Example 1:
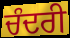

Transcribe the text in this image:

ਚੰਦਰੀ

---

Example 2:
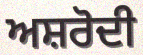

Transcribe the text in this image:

ਅਸ਼ਰੋਦੀ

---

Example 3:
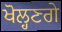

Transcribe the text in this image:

ਖੋਲ੍ਹਣਗੇ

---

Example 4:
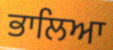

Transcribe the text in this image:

ਭਾਲਿਆ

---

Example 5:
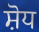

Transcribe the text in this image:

ਸ਼ੋਧ